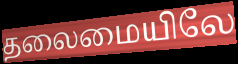
தலைமையிலே